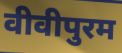
वीवीपुरम